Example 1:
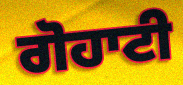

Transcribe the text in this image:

ਗੋਹਾਟੀ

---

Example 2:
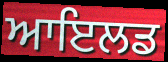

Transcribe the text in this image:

ਆਇਲਡ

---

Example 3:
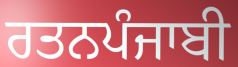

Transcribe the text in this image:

ਰਤਨਪੰਜਾਬੀ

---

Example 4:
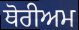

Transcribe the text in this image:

ਥੋਰੀਅਮ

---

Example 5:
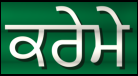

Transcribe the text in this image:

ਕਰੇਮੇ